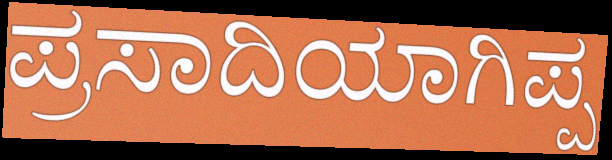
ಪ್ರಸಾದಿಯಾಗಿಪ್ಪ